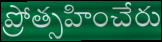
ప్రోత్సహించేరు